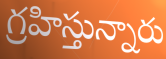
గ్రహిస్తున్నారు